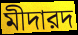
মীদারদ